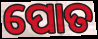
ପୋତ